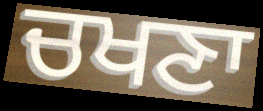
ਚਖਣਾ